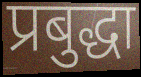
प्रबुद्धा